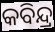
କବିନ୍ଦ୍ର